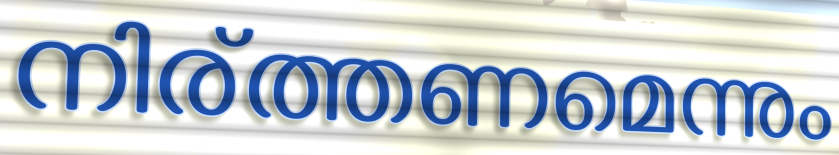
നിര്ത്തണമെന്നും